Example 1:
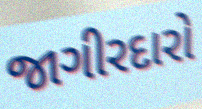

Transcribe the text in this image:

જાગીરદારો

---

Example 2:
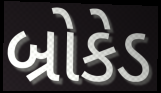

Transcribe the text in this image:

બ્રોકેડ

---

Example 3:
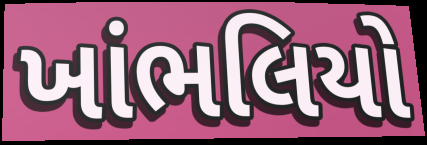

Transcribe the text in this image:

ખાંભલિયો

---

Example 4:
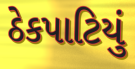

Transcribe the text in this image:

ઠેકપાટિયું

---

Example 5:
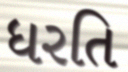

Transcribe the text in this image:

ધરતિ